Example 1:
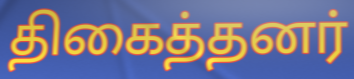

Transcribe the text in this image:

திகைத்தனர்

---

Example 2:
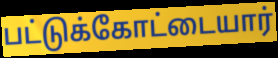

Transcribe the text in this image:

பட்டுக்கோட்டையார்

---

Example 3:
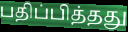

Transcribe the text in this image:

பதிப்பித்தது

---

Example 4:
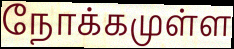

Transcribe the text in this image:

நோக்கமுள்ள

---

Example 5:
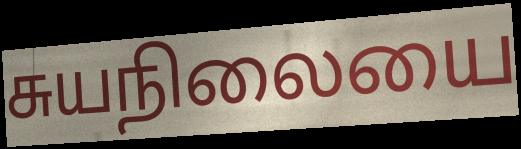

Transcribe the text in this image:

சுயநிலையை